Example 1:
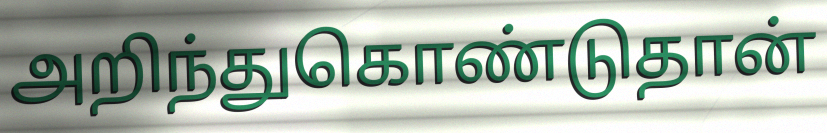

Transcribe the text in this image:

அறிந்துகொண்டுதான்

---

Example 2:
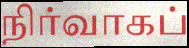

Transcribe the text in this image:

நிர்வாகப்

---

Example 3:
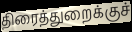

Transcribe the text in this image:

திரைத்துறைக்குச்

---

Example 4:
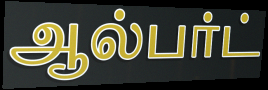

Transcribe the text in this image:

ஆல்பர்ட்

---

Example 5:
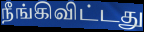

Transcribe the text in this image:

நீங்கிவிட்டது